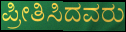
ಪ್ರೀತಿಸಿದವರು